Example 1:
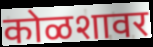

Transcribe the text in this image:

कोळशावर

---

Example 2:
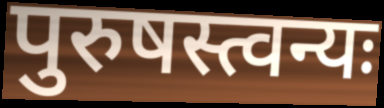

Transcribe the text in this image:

पुरुषस्त्वन्यः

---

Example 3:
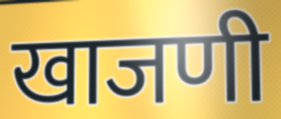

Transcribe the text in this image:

खाजणी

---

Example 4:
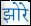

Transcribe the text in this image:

झोरे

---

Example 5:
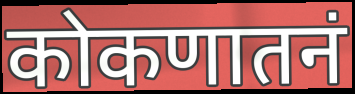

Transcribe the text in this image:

कोकणातनं